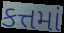
કત્તમાં